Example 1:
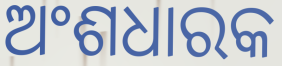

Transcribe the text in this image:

ଅଂଶଧାରକ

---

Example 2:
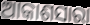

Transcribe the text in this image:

ଆକାଶସାରା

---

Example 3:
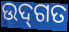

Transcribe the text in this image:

ଉଦ୍‌ଗତ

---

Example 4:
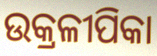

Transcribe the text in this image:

ଉକ୍ରଳୀପିକା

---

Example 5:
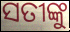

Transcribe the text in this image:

ସତୀଙ୍କୁ